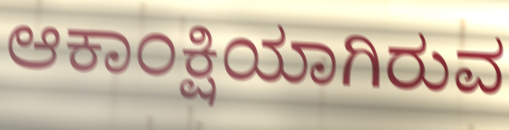
ಆಕಾಂಕ್ಷಿಯಾಗಿರುವ